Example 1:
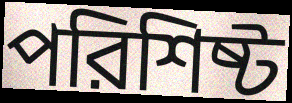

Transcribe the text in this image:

পরিশিষ্ট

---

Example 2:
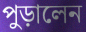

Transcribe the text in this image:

পুড়ালেন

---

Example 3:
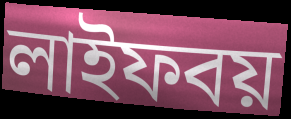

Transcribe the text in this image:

লাইফবয়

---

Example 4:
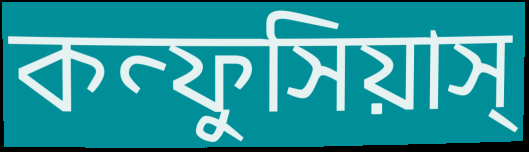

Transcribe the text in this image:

কন্ফুসিয়াস্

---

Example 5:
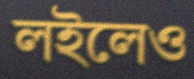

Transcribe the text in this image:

লইলেও